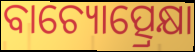
ବାଚ୍ୟୋତ୍ପ୍ରେକ୍ଷା